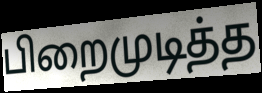
பிறைமுடித்த